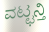
ವಟ್ಟನ್ತಿ